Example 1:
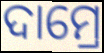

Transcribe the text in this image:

ଦାମ୍ରେ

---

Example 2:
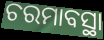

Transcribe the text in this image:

ଚରମାବସ୍ଥା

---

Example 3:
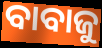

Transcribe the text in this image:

ବାବାଜୁ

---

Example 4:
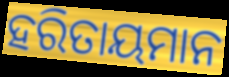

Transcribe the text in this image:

ହରିତାୟମାନ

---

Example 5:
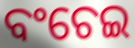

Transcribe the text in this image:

ବଂଚେଇ